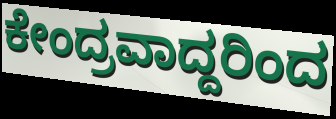
ಕೇಂದ್ರವಾದ್ದರಿಂದ